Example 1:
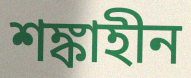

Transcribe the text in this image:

শঙ্কাহীন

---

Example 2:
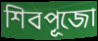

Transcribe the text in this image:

শিবপূজো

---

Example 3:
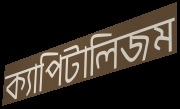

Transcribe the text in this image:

ক্যাপিটালিজম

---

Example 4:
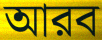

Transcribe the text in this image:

আরব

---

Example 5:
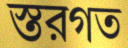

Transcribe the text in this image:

স্তরগত